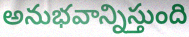
అనుభవాన్నిస్తుంది